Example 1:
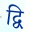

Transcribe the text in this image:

द्वि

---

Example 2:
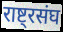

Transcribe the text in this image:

राष्ट्रसंघ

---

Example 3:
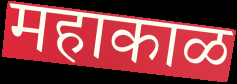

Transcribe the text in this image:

महाकाळ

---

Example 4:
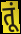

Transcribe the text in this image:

तूं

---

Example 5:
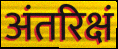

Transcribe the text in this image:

अंतरिक्षं